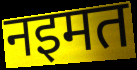
नइमत